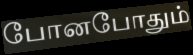
போனபோதும்